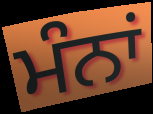
ਮੰਨਾਂ